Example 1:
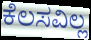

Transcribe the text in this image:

ಕೆಲಸವಿಲ್ಲ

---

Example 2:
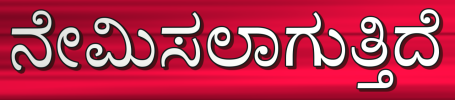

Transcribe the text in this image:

ನೇಮಿಸಲಾಗುತ್ತಿದೆ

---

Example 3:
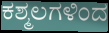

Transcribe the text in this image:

ಕಶ್ಮಲಗಳಿಂದ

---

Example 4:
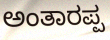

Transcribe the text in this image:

ಅಂತಾರಪ್ಪ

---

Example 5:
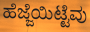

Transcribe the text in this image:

ಹೆಜ್ಜೆಯಿಟ್ಟೆವು